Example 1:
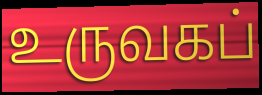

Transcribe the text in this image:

உருவகப்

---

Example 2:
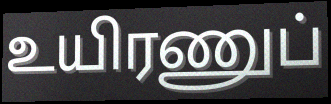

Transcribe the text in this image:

உயிரணுப்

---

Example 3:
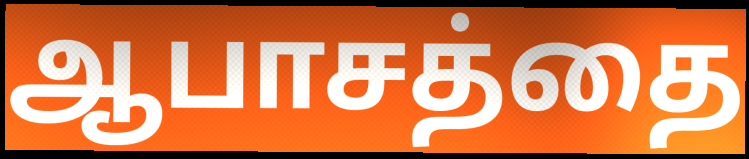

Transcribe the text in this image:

ஆபாசத்தை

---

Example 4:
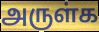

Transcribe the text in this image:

அருள்க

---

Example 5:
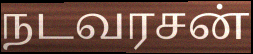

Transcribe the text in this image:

நடவரசன்